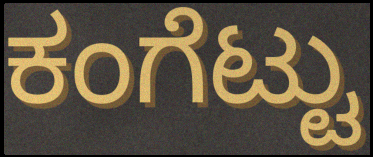
ಕಂಗೆಟ್ಟು